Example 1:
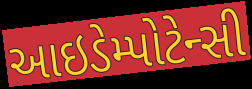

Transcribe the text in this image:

આઇડેમ્પોટેન્સી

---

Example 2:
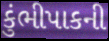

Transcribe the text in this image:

કુંભીપાકની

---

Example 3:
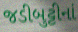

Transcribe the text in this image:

જડીબુટ્ટીનાં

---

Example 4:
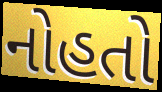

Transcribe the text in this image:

નોહતો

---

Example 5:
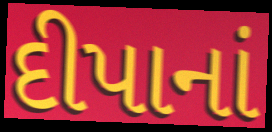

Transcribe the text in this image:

દીપાનાં